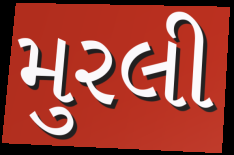
મુરલી